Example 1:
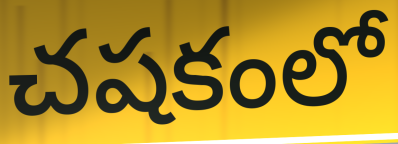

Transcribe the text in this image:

చషకంలో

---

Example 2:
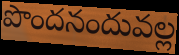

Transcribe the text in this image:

పొందనందువల్ల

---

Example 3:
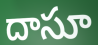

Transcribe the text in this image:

దాసూ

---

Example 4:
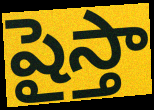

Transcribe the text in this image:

షైస్తా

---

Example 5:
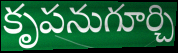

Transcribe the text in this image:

కృపనుగూర్చి